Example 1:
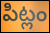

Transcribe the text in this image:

పిట్లం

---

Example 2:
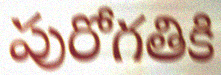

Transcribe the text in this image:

పురోగతికి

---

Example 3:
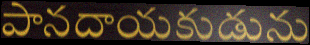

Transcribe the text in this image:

పానదాయకుడును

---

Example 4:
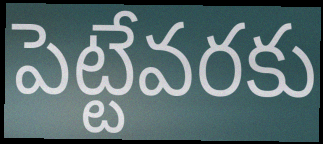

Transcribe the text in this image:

పెట్టేవరకు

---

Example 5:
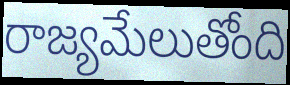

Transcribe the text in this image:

రాజ్యమేలుతోంది